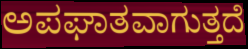
ಅಪಘಾತವಾಗುತ್ತದೆ